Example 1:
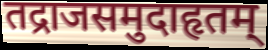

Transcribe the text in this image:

तद्राजसमुदाहृतम्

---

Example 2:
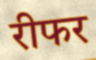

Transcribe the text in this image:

रीफर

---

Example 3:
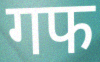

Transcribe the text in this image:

गफ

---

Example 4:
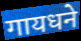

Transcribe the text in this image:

गायधने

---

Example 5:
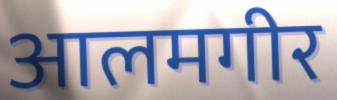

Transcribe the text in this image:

आलमगीर